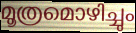
മൂത്രമൊഴിച്ചും